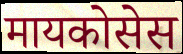
मायकोसेस